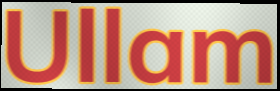
Ullam